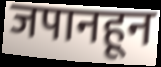
जपानहून